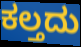
ಕಲ್ತದು